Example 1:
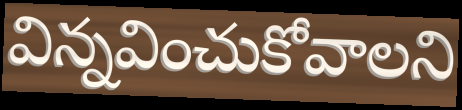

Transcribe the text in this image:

విన్నవించుకోవాలని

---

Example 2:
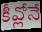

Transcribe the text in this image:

కీవ్లోనే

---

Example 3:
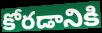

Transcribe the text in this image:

కోరడానికి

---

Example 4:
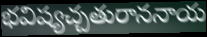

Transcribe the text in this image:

భవిష్యచ్చతురాననాయ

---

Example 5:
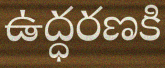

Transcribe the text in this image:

ఉద్ధరణకి